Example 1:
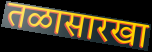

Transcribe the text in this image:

तळासारखा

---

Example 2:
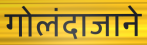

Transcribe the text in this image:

गोलंदाजाने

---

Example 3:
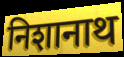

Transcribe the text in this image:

निशानाथ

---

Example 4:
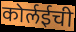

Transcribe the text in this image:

कोर्लईची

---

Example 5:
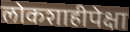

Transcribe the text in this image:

लोकशाहीपेक्षा